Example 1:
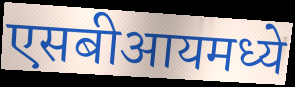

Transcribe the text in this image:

एसबीआयमध्ये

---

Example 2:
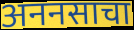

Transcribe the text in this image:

अननसाचा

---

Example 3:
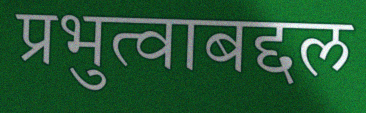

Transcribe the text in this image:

प्रभुत्वाबद्दल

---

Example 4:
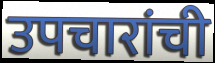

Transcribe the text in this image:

उपचारांची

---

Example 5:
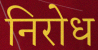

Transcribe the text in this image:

निरोध